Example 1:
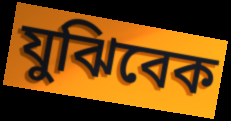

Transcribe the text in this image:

যুঝিবেক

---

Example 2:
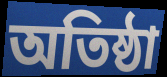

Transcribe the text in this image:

অতিষ্ঠা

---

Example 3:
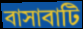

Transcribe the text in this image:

বাসাবাটি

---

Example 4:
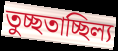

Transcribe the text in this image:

তুচ্ছতাচ্ছিল্য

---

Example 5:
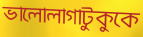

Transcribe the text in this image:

ভালোলাগাটুকুকে